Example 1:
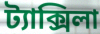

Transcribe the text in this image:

ট্যাক্সিলা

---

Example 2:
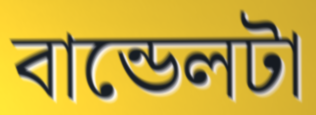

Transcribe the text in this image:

বান্ডেলটা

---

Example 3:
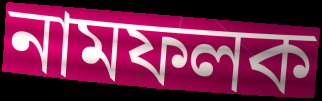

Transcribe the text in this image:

নামফলক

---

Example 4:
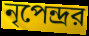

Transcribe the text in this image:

নৃপেন্দ্রর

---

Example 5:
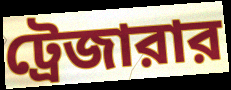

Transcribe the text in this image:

ট্রেজারার